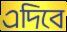
এদিবে